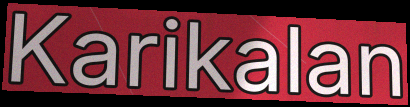
Karikalan